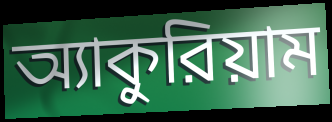
অ্যাকুরিয়াম